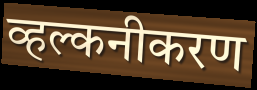
व्हल्कनीकरण